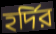
হর্দির